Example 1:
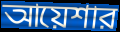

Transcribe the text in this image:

আয়েশার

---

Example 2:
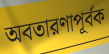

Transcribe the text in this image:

অবতারণাপূর্বক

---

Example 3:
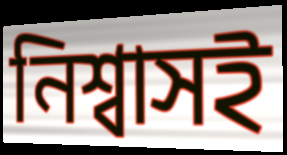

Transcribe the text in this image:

নিশ্বাসই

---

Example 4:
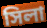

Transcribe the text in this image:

সিলা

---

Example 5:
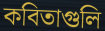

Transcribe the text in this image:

কবিতাগুলি